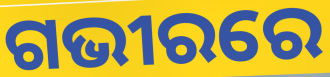
ଗଭୀରରେ